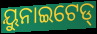
ୟୁନାଇଟେଡ୍